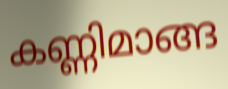
കണ്ണിമാങ്ങ